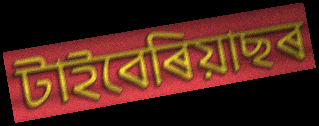
টাইবেৰিয়াছৰ